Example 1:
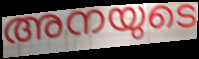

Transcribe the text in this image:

അനയുടെ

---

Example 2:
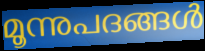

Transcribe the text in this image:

മൂന്നുപദങ്ങൾ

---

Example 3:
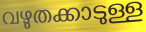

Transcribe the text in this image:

വഴുതക്കാടുള്ള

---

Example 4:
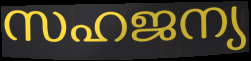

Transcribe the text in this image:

സഹജന്യ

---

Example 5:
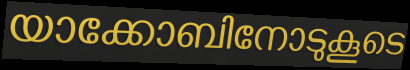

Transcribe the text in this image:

യാക്കോബിനോടുകൂടെ